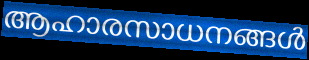
ആഹാരസാധനങ്ങൾ